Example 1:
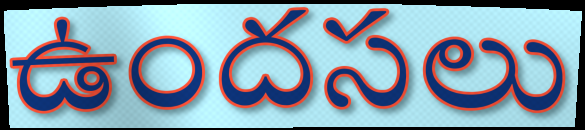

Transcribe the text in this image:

ఉందసలు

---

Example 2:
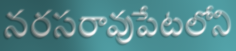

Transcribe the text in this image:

నరసరావుపేటలోని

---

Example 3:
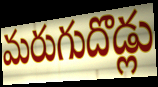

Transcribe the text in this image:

మరుగుదొడ్లు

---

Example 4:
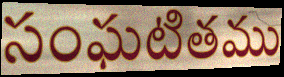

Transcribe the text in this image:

సంఘటితము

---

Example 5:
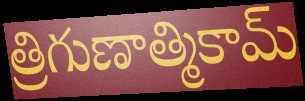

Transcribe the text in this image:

త్రిగుణాత్మికామ్